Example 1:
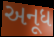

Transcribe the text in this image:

અનૂધ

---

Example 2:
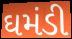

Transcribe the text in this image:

ઘમંડી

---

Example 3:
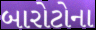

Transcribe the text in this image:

બારોટોના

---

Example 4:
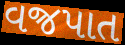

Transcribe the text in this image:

વજ્રપાત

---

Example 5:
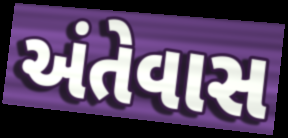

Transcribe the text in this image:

અંતેવાસ